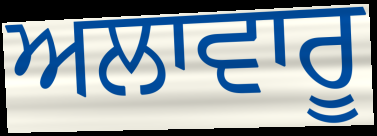
ਅਲਾਵਾਰੂ